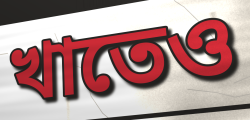
খাতেও